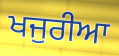
ਖਜੁਰੀਆ